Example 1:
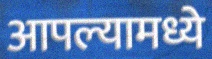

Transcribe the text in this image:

आपल्यामध्ये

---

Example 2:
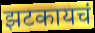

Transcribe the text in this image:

झटकायचं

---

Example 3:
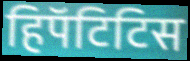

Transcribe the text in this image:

हिपॅटिटिस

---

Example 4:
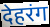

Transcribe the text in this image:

देहरंग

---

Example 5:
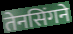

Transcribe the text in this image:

तेनसिंगने